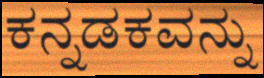
ಕನ್ನಡಕವನ್ನು